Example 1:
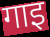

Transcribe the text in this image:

गाइ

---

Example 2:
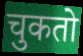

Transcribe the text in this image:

चुकतो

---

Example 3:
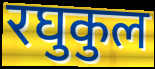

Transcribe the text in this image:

रघुकुल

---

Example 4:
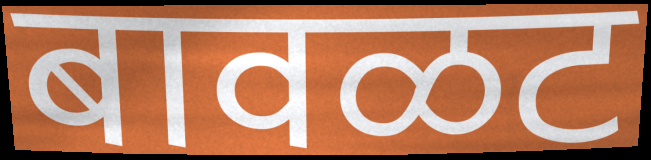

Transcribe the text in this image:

बावळट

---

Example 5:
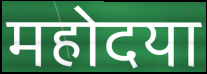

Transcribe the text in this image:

महोदया